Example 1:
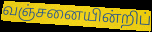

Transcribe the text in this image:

வஞ்சனையின்றிப்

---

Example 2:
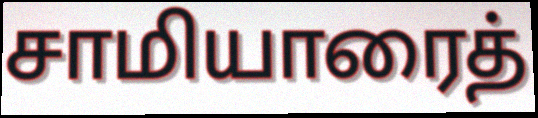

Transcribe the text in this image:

சாமியாரைத்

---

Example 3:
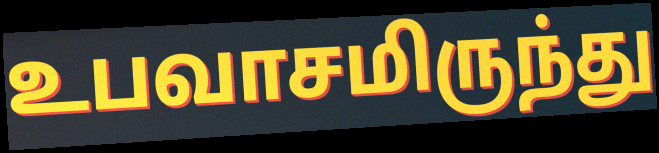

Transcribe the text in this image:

உபவாசமிருந்து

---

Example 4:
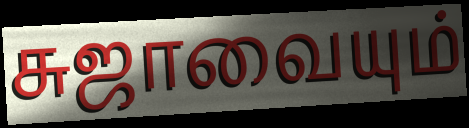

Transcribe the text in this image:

சுஜாவையும்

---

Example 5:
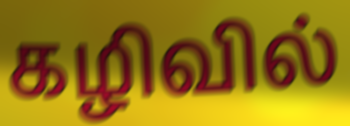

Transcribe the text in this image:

கழிவில்